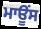
ਮਾਊਂਸ